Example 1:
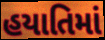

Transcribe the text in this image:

હયાતિમાં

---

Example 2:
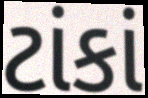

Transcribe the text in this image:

ટાંકાં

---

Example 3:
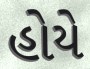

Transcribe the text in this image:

હોયે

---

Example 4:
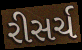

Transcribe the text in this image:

રીસર્ચ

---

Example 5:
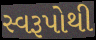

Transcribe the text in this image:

સ્વરૂપોથી